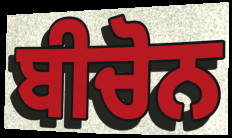
ਬੀਚੋਨ